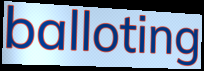
balloting